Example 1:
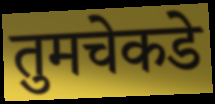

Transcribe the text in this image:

तुमचेकडे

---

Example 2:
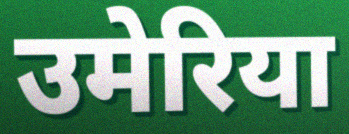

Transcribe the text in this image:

उमेरिया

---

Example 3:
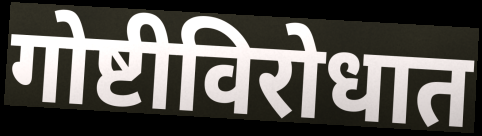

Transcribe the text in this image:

गोष्टीविरोधात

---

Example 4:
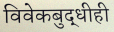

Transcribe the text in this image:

विवेकबुद्धीही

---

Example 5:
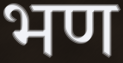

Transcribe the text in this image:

भण